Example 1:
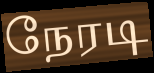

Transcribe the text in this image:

நேரடி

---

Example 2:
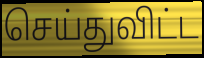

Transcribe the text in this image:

செய்துவிட்ட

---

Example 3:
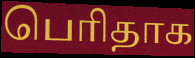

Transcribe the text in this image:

பெரிதாக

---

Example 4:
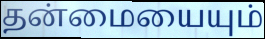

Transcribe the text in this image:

தன்மையையும்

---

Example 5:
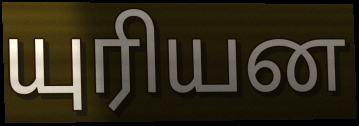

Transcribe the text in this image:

யுரியன